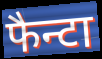
फैन्टा